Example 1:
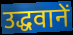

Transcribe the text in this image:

उद्धवानें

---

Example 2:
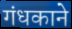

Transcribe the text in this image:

गंधकाने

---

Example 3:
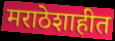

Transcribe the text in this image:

मराठेशाहीत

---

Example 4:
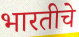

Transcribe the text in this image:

भारतीचे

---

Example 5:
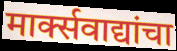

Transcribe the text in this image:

मार्क्‍सवाद्यांचा